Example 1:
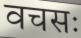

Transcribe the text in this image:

वचसः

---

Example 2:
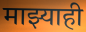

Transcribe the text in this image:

माझ्याही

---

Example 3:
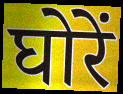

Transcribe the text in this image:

घोरें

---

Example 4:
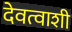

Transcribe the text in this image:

देवत्वाशी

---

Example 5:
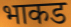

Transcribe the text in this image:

भाकड